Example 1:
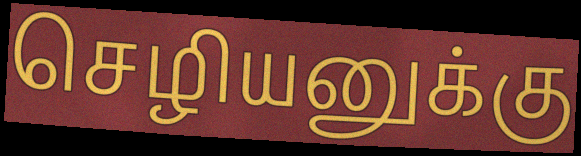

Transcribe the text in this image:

செழியனுக்கு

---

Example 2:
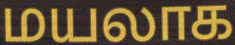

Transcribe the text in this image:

மயலாக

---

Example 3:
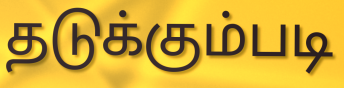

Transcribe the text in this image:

தடுக்கும்படி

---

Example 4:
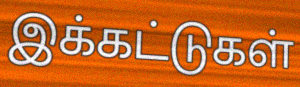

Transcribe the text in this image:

இக்கட்டுகள்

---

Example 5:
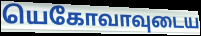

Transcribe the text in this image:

யெகோவாவுடைய